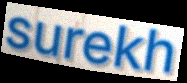
surekh